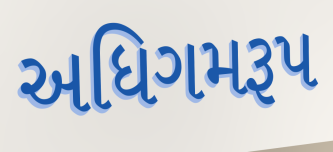
અધિગમરૂપ